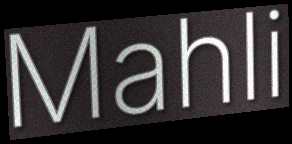
Mahli